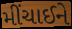
મીંચાઈને